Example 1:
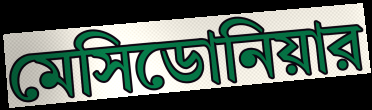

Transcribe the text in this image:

মেসিডোনিয়ার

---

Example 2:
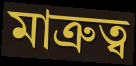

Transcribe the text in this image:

মাত্রুত্ব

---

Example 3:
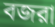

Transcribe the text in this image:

বজরা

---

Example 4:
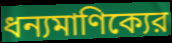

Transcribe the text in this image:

ধন্যমাণিক্যের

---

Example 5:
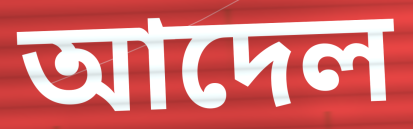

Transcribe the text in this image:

আদেল